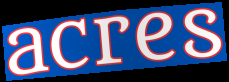
acres